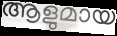
ആളുമായ